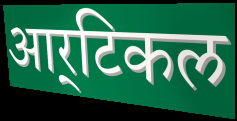
आर्टिकल